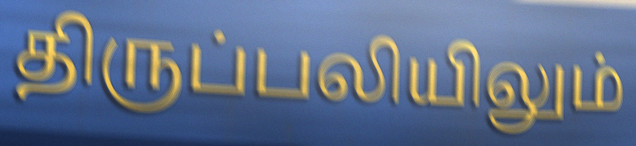
திருப்பலியிலும்